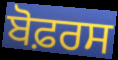
ਬੋਫ਼ਰਸ